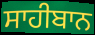
ਸਾਹੀਬਾਨ